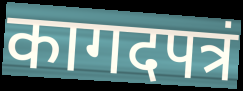
कागदपत्रं